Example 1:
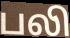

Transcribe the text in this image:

பலி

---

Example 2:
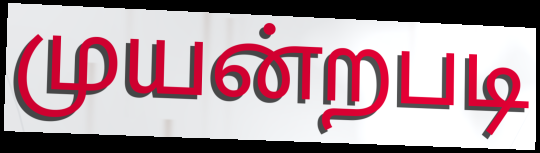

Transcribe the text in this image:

முயன்றபடி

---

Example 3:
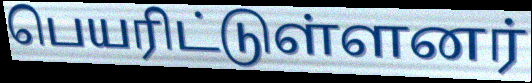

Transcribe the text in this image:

பெயரிட்டுள்ளனர்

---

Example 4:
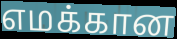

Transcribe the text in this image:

எமக்கான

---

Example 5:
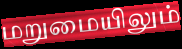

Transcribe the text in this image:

மறுமையிலும்